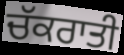
ਚੱਕਰਾਤੀ